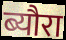
ब्‍यौरा